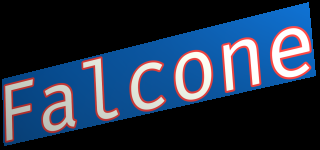
Falcone